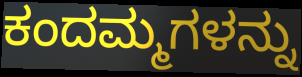
ಕಂದಮ್ಮಗಳನ್ನು